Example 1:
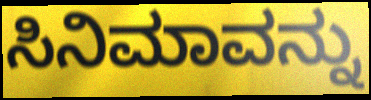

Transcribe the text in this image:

ಸಿನಿಮಾವನ್ನು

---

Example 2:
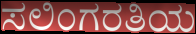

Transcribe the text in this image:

ಸಲಿಂಗರತಿಯ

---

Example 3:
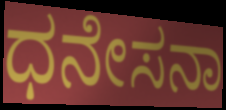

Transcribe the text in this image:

ಧನೇಸನಾ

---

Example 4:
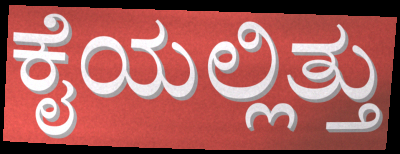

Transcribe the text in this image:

ಕೈಯಲ್ಲಿತ್ತು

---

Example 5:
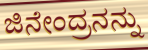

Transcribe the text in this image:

ಜಿನೇಂದ್ರನನ್ನು